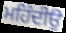
ਮਹਿੰਦੀਉ